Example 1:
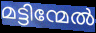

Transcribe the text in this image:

മട്ടിന്മേൽ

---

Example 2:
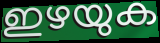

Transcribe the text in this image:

ഇഴയുക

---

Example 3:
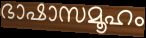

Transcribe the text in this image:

ഭാഷാസമൂഹം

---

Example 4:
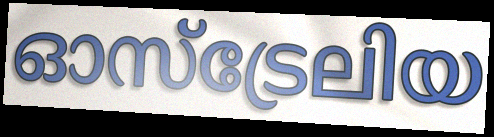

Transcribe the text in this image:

ഓസ്ട്രേലിയ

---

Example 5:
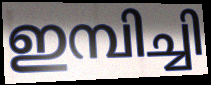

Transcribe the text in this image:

ഇമ്പിച്ചി